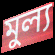
মুল্য